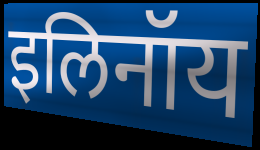
इलिनॉय